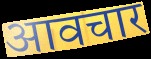
आवचार